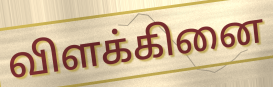
விளக்கினை